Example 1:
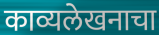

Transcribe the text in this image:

काव्यलेखनाचा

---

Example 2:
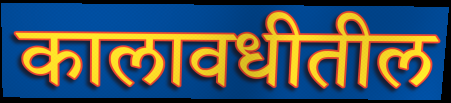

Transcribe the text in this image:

कालावधीतील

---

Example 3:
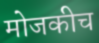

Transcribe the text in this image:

मोजकीच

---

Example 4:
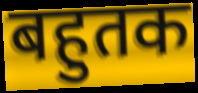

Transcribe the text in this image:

बहुतक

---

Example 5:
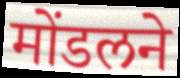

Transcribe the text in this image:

मोंडलने